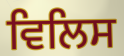
ਵਿਲਿਸ